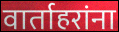
वार्ताहरांना